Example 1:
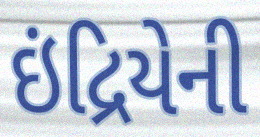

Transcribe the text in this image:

ઇંદ્રિયેની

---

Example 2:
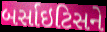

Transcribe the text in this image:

બર્સાઇટિસને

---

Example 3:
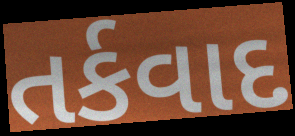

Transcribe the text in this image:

તર્કવાદ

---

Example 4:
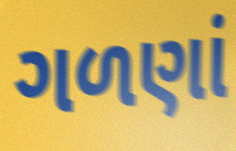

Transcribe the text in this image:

ગળણાં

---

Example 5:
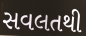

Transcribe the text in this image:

સવલતથી